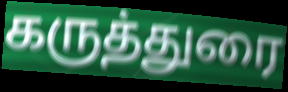
கருத்துரை